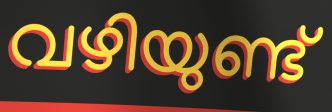
വഴിയുണ്ട്